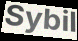
Sybil